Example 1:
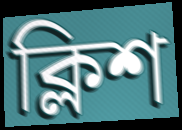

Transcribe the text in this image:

ক্লিশ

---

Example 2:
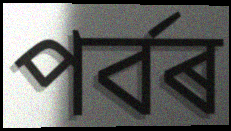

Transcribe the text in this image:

পৰ্বৰ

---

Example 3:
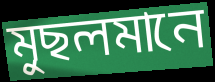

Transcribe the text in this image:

মুছলমানে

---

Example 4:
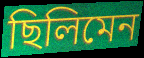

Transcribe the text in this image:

ছিলিমেন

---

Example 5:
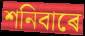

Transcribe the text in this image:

শনিবাৰে